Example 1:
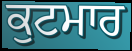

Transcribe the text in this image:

ਕੁਟਮਾਰ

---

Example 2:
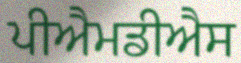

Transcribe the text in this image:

ਪੀਐਮਡੀਐਸ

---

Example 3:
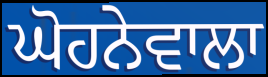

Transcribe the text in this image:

ਘੋਹਨੇਵਾਲਾ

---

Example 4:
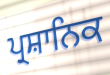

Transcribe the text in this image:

ਪ੍ਰਸ਼ਾਨਿਕ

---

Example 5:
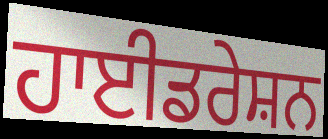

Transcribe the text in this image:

ਹਾਈਡਰੇਸ਼ਨ